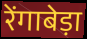
रेंगाबेड़ा